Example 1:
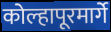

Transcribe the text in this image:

कोल्हापूरमार्गे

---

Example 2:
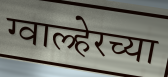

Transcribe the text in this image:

ग्वाल्हेरच्या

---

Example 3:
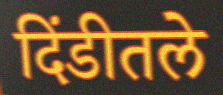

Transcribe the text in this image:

दिंडीतले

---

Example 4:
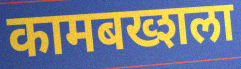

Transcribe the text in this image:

कामबख्शला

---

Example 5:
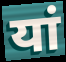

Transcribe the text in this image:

यां